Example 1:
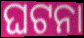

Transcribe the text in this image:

ଘଟନା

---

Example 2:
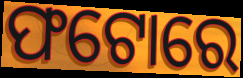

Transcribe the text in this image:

ଫଟୋରେ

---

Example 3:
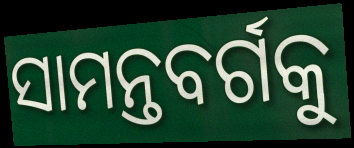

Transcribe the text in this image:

ସାମନ୍ତବର୍ଗକୁ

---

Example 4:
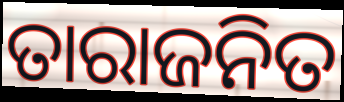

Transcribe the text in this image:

ତାରାଜନିତ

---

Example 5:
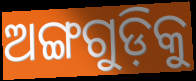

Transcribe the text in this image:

ଅଙ୍ଗଗୁଡ଼ିକୁ